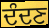
ਦੰਦਣ